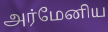
அர்மேனிய